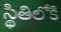
స్థితిలోకి